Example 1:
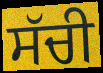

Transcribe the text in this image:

ਸੱਚੀ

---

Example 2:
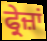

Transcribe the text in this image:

ਫ੍ਰੇਜ਼ਾਂ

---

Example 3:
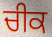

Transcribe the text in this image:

ਚੀਕ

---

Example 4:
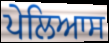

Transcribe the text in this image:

ਪੇਲਿਆਸ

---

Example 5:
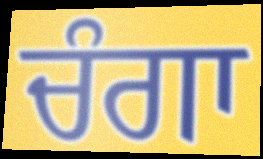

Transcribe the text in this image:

ਚੰਗਾ